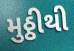
મુઠ્ઠીથી